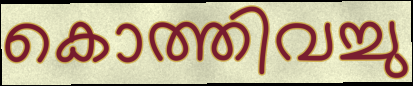
കൊത്തിവച്ചു